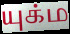
யுக்ம